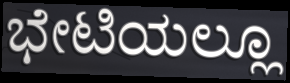
ಭೇಟಿಯಲ್ಲೂ